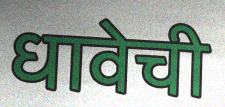
धावेची